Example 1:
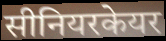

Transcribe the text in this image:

सीनियरकेयर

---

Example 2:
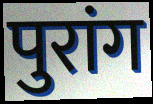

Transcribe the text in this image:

पुरांग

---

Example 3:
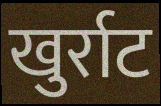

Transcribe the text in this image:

खुर्राट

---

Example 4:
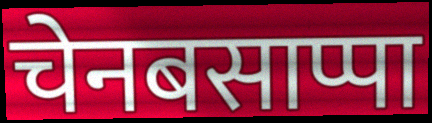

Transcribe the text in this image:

चेनबसाप्पा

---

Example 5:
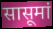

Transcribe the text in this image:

सासूमां